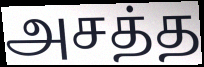
அசத்த